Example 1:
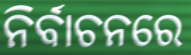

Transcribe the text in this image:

ନିର୍ବାଚନରେ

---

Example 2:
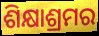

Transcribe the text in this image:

ଶିକ୍ଷାଶ୍ରମର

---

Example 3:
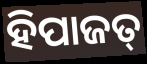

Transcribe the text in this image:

ହିପାଜତ୍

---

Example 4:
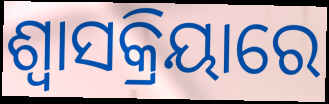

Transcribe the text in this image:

ଶ୍ୱାସକ୍ରିୟାରେ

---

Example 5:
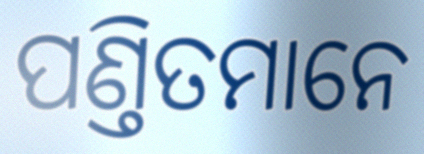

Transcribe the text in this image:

ପଣ୍ତିତମାନେ